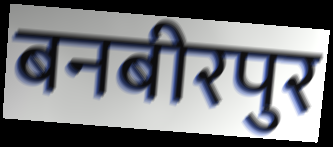
बनबीरपुर